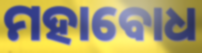
ମହାବୋଧ